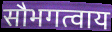
सौभगत्वाय